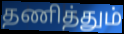
தணித்தும்